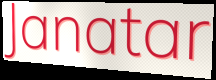
Janatar